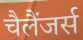
चैलैंजर्स